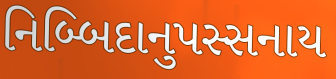
નિબ્બિદાનુપસ્સનાય